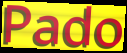
Pado